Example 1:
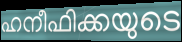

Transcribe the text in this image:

ഹനീഫിക്കയുടെ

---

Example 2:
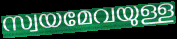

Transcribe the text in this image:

സ്വയമേവയുള്ള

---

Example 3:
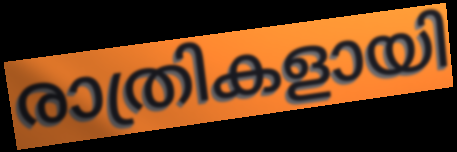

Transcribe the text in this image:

രാത്രികളായി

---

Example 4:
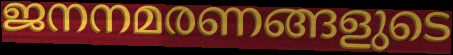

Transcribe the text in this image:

ജനനമരണങ്ങളുടെ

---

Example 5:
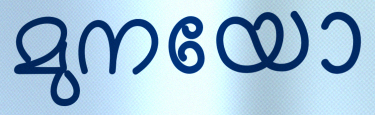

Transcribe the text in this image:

മുനയോ